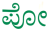
ಪೋ